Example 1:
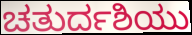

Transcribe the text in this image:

ಚತುರ್ದಶಿಯು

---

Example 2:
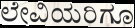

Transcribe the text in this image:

ಲೇವಿಯರಿಗೂ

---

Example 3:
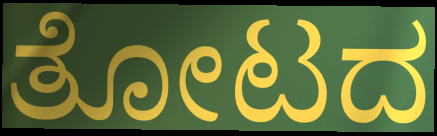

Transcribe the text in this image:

ತೋಟದ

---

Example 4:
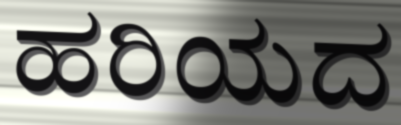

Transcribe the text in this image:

ಹರಿಯದ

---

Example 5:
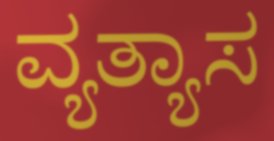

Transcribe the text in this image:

ವ್ಯತ್ಯಾಸ